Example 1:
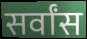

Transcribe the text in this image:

सर्वांस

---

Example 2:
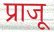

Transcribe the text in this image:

प्राजू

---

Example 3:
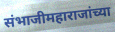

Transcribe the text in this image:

संभाजीमहाराजांच्या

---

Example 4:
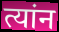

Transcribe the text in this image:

त्यांन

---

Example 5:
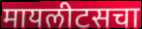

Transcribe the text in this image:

मायलीटसचा